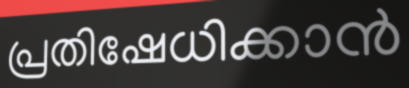
പ്രതിഷേധിക്കാൻ